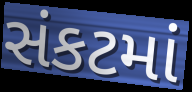
સંકટમાં